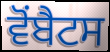
ਵੋਂਬੈਟਸ